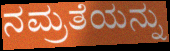
ನಮ್ರತೆಯನ್ನು